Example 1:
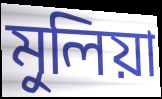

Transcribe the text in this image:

মুলিয়া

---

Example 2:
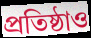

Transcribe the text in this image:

প্রতিষ্ঠাও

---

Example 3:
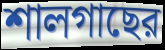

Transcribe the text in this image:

শালগাছের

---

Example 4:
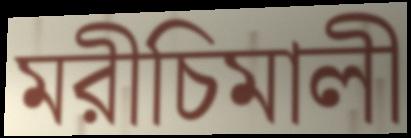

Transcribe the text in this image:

মরীচিমালী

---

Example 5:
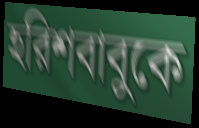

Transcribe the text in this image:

হরিশবাবুকে